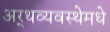
अर्थव्यवस्थेमधे